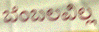
ಬೆಂಬಲವಿಲ್ಲ